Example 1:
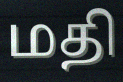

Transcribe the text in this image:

மதி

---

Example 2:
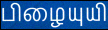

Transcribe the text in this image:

பிழையுயி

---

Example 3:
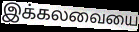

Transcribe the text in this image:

இக்கலவையை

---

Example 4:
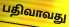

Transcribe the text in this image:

பதிவாவது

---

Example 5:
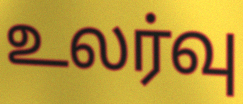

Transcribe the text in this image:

உலர்வு